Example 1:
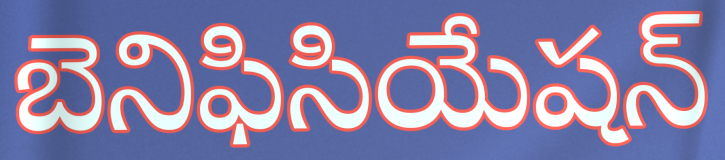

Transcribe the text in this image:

బెనిఫిసియేషన్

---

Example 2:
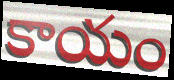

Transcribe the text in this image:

కాయం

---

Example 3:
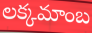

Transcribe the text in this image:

లక్కమాంబ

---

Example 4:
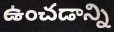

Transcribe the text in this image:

ఉంచడాన్ని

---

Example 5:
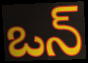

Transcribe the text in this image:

ఒన్